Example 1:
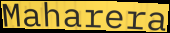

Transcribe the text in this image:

Maharera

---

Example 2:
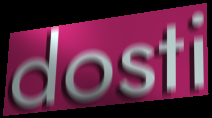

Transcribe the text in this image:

dosti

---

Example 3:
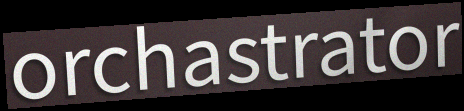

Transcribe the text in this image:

orchastrator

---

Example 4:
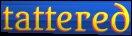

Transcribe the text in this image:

tattered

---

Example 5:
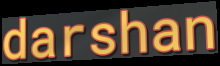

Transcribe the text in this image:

darshan